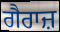
ਗੈਰਾਜ਼